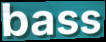
bass